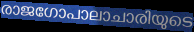
രാജഗോപാലാചാരിയുടെ